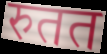
रुतत